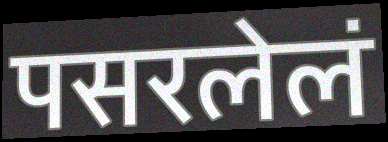
पसरलेलं